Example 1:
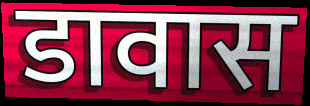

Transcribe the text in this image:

डावास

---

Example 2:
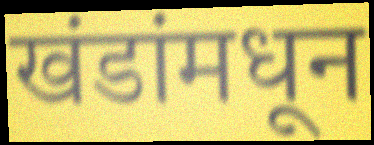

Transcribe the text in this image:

खंडांमधून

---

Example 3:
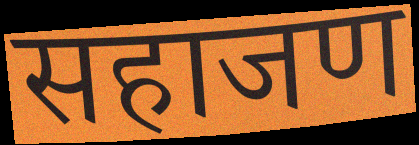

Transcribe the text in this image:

सहाजण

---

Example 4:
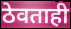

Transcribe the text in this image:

ठेवताही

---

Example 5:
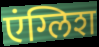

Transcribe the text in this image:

एंग्लिश